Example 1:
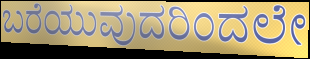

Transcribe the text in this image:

ಬರೆಯುವುದರಿಂದಲೇ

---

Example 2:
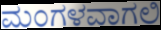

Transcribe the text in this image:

ಮಂಗಳವಾಗಲಿ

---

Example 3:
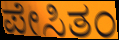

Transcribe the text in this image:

ಪೇಸಿತಂ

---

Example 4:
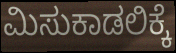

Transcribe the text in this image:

ಮಿಸುಕಾಡಲಿಕ್ಕೆ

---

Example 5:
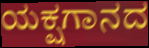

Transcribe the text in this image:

ಯಕ್ಷಗಾನದ